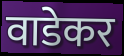
वाडेकर